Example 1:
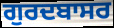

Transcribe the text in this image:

ਗੁਰਦਬਾਸਰ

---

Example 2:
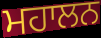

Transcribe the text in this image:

ਮਹਾਲਨ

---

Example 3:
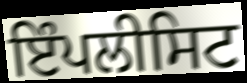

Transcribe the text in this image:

ਇੰਪਲੀਸਿਟ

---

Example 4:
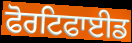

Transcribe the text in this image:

ਫੋਰਟਿਫਾਈਡ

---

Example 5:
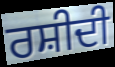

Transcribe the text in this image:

ਰਸ਼ੀਦੀ